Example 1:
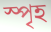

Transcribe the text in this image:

স্পৃহ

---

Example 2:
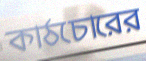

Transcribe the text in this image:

কাঠচোরের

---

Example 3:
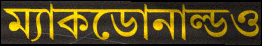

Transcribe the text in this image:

ম্যাকডোনাল্ডও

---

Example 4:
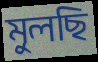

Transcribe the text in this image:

মুলছি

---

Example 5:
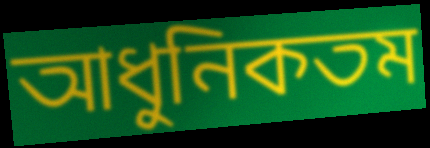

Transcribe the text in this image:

আধুনিকতম